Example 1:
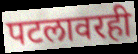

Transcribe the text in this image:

पटलावरही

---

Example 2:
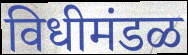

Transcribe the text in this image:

विधीमंडळ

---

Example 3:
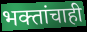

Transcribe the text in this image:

भक्तांचाही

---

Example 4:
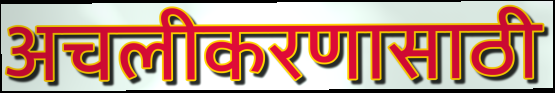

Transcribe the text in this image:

अचलीकरणासाठी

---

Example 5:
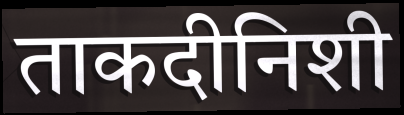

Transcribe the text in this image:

ताकदीनिशी